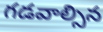
గడవాల్సిన